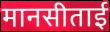
मानसीताई